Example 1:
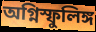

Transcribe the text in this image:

অগ্নিস্ফুলিঙ্গ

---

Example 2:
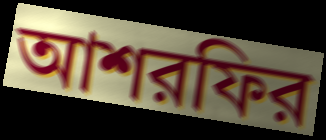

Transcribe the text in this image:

আশরফির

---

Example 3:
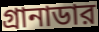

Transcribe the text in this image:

গ্রানাডার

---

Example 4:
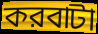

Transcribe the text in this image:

করবাটা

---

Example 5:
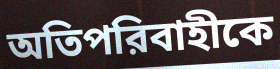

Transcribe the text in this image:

অতিপরিবাহীকে